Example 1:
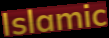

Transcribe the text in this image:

Islamic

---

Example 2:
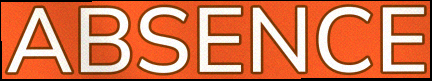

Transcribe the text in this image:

ABSENCE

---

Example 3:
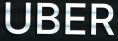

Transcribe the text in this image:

UBER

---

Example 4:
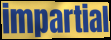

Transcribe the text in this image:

impartial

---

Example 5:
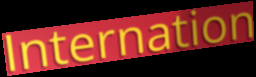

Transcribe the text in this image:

Internation